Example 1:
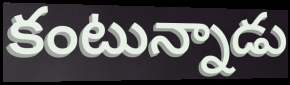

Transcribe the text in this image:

కంటున్నాడు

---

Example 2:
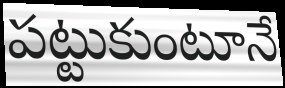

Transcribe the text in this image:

పట్టుకుంటూనే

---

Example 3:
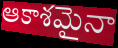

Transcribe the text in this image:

ఆకాశమైనా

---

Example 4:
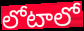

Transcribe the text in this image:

లోటాలో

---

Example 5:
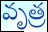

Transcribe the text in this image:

వృత్ర